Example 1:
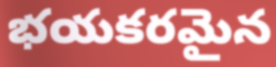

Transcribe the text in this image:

భయకరమైన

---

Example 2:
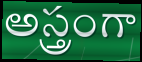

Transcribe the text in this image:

అస్త్రంగా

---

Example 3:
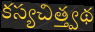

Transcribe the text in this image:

కస్యచిత్త్వథ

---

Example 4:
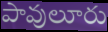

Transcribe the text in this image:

పావులూరు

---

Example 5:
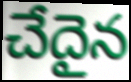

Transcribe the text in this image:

చేదైన